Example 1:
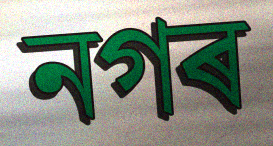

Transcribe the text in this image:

নগৰ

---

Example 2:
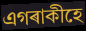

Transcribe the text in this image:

এগৰাকীহে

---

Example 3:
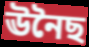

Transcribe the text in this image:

ঊনৈছ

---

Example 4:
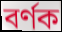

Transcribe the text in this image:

বৰ্ণক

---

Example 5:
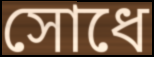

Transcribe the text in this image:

সোধে